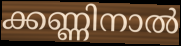
ക്കണ്ണിനാൽ